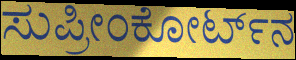
ಸುಪ್ರೀಂಕೋರ್ಟ್‌ನ